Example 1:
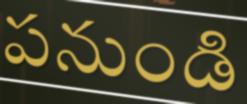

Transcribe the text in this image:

పనుండి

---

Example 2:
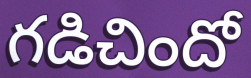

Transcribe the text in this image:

గడిచిందో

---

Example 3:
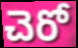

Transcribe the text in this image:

చెరో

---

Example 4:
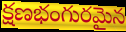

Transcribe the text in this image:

క్షణభంగురమైన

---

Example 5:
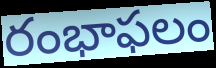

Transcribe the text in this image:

రంభాఫలం